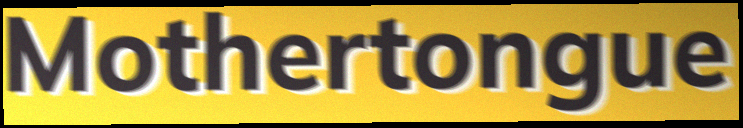
Mothertongue